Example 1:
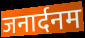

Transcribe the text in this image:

जनार्दनम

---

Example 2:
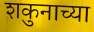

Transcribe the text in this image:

शकुनाच्या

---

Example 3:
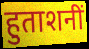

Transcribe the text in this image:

हुताशनीं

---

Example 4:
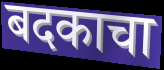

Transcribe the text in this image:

बदकाचा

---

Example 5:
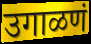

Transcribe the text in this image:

उगाळणं